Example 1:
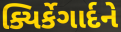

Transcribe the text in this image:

ક્યિર્કેગાર્દને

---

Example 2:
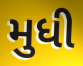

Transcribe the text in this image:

મુધી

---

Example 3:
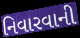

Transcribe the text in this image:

નિવારવાની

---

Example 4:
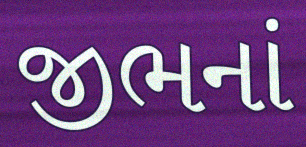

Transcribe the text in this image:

જીભનાં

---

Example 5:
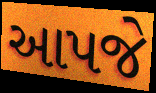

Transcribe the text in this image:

આપજે